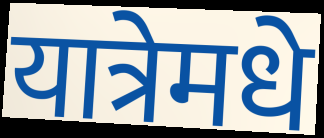
यात्रेमधे